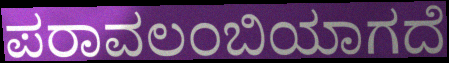
ಪರಾವಲಂಬಿಯಾಗದೆ